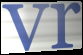
vr